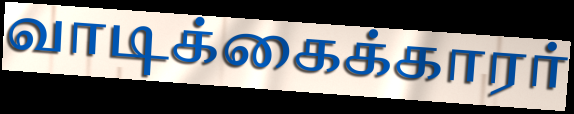
வாடிக்கைக்காரர்